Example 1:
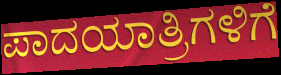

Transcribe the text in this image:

ಪಾದಯಾತ್ರಿಗಳಿಗೆ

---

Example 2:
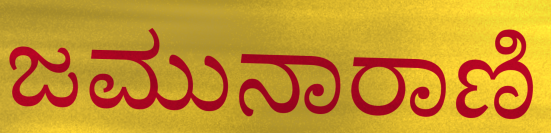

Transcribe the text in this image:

ಜಮುನಾರಾಣಿ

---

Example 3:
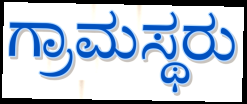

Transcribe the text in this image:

ಗ್ರಾಮಸ್ಥರು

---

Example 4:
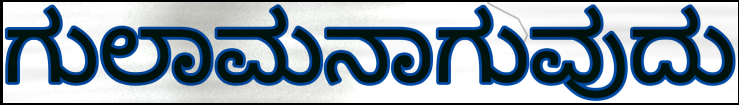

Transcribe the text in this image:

ಗುಲಾಮನಾಗುವುದು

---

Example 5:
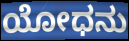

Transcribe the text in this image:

ಯೋಧನು